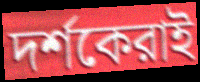
দর্শকেরাই